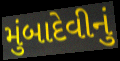
મુંબાદેવીનું